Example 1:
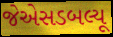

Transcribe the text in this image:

જેએસડબલ્યૂ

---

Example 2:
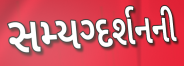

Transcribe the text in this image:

સમ્યગ્દર્શનની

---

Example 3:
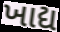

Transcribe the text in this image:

ખાદ્ય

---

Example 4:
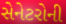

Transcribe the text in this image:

સેનેટરોની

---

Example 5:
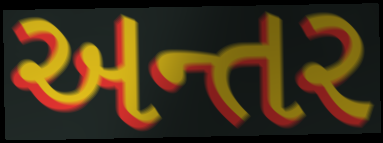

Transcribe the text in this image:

અન્તર